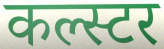
कल्स्टर